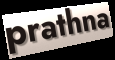
prathna